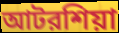
আটরশিয়া